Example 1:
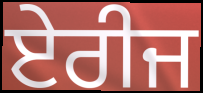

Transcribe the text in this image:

ਏਰੀਜ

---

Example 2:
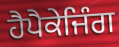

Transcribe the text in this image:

ਹੈਪੈਕੇਜਿੰਗ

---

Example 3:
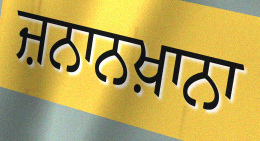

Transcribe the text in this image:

ਜ਼ਨਾਨਖ਼ਾਨਾ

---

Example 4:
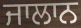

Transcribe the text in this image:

ਜਾਲਾਨ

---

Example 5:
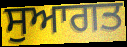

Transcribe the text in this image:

ਸੁਆਗਤ